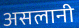
असलानी